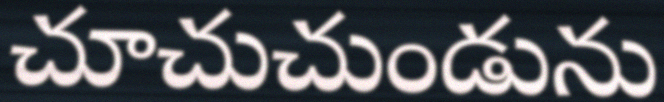
చూచుచుండును